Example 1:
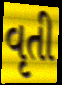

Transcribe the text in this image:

વૃતી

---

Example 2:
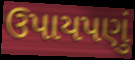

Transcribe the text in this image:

ઉપાયપણું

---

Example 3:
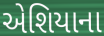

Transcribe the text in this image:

એશિયાના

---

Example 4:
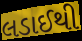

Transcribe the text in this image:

લડાઈથી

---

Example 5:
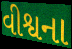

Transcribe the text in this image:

વીશ્વના